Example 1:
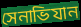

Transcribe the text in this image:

সেনাভিযান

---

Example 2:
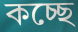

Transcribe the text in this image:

কচ্ছে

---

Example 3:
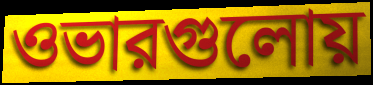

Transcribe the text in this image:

ওভারগুলোয়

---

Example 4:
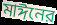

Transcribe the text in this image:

মাঈনের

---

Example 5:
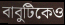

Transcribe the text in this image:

বাবুটিকেও